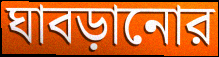
ঘাবড়ানোর